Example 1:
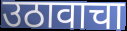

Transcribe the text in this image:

उठावाचा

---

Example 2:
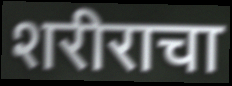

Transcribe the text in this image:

शरीराचा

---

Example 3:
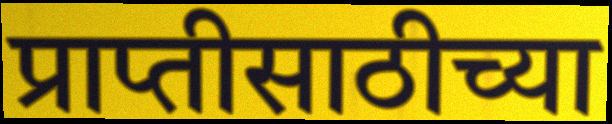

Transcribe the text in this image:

प्राप्तीसाठीच्या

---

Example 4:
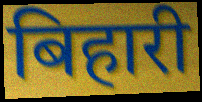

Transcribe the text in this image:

बिहारी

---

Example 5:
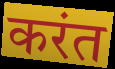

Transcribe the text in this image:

करंत